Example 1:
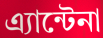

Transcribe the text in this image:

এ্যান্টেনা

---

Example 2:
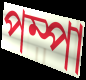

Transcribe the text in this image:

পম্পা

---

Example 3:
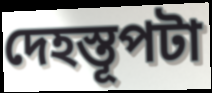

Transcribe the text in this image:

দেহস্তূপটা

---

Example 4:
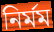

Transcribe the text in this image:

নির্মম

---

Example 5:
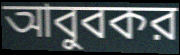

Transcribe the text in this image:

আবুবকর